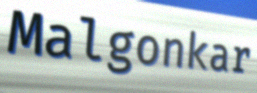
Malgonkar